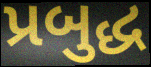
પ્રબુદ્ધ